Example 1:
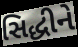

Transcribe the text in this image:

સિદ્ધીને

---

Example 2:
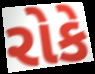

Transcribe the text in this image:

રોકે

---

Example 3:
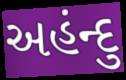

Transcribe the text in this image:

અહંન્દુ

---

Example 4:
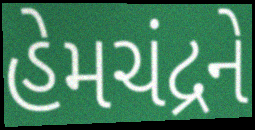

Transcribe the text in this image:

હેમચંદ્રને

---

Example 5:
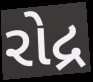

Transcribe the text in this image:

રોદ્ર